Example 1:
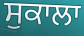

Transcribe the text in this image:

ਸੁਕਾਲਾ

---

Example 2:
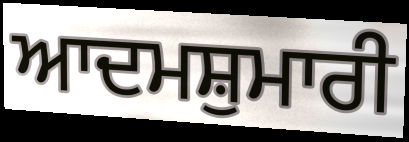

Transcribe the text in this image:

ਆਦਮਸ਼ੁਮਾਰੀ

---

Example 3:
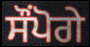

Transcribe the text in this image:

ਸੌਂਪੋਗੇ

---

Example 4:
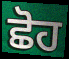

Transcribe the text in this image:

ਛੋਹ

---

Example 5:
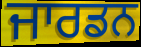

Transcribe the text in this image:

ਜਾਰਡਨ